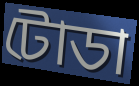
টোডা